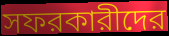
সফরকারীদের